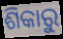
ଶିକାରୁ